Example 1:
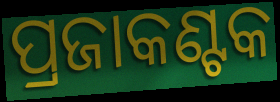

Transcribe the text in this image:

ପ୍ରଜାକଣ୍ଟକ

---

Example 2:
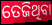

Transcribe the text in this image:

ତେଜିଥିବା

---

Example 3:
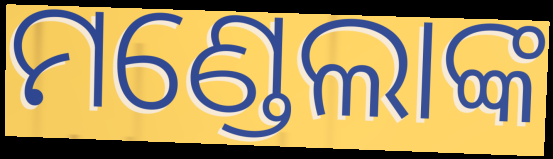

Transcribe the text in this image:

ମଣ୍ଡେଲାଙ୍କ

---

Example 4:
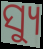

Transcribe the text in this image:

ସ୍ୟୁ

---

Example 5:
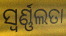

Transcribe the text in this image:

ସ୍ଵର୍ଣ୍ଣଲତା